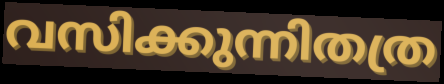
വസിക്കുന്നിതത്ര